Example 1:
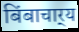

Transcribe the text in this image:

बिंबाचार्य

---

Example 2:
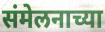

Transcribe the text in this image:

संमेलनाच्या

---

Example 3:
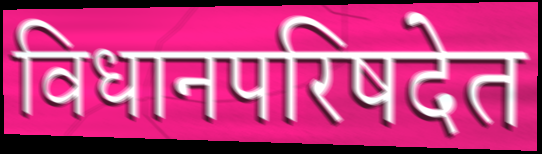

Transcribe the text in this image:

विधानपरिषदेत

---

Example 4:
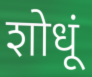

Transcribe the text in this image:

शोधूं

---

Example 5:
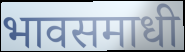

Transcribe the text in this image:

भावसमाधी